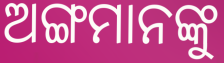
ଅଙ୍ଗମାନଙ୍କୁ